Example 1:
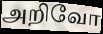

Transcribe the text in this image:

அறிவோ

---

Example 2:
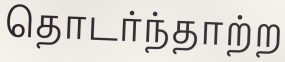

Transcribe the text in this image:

தொடர்ந்தாற்ற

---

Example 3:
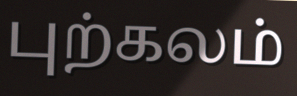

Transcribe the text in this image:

புற்கலம்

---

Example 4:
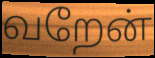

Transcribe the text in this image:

வறேன்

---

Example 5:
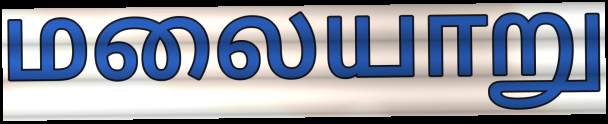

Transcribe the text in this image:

மலையாறு